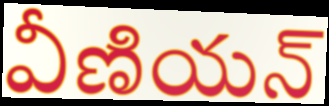
వీణియన్